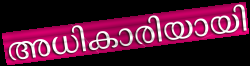
അധികാരിയായി